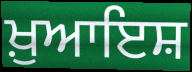
ਖ਼ੁਆਇਸ਼